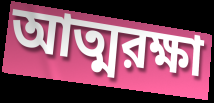
আত্মরক্ষা